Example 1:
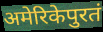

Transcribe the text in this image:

अमेरिकेपुरतं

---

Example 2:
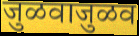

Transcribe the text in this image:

जुळवाजुळव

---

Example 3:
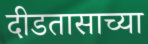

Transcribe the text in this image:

दीडतासाच्या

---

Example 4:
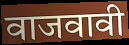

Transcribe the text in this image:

वाजवावी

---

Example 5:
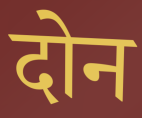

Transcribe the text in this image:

दोन